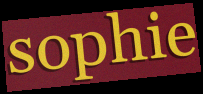
sophie